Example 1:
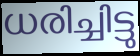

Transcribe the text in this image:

ധരിച്ചിട്ടു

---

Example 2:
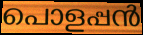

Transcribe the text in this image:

പൊളപ്പൻ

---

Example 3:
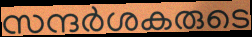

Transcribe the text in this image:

സന്ദർശകരുടെ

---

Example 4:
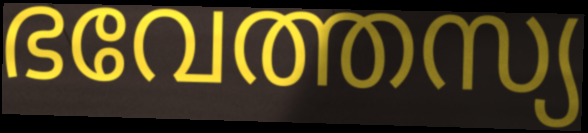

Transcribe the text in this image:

ഭവേത്തസ്യ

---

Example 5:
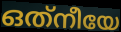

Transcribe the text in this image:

ഒത്‌നീയേ